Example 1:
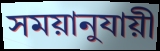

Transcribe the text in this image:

সময়ানুযায়ী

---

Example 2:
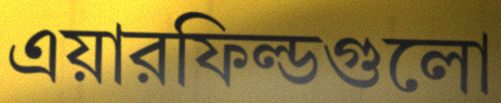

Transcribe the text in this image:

এয়ারফিল্ডগুলো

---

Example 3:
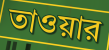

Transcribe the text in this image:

তাওয়ার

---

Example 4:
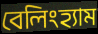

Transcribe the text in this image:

বেলিংহ্যাম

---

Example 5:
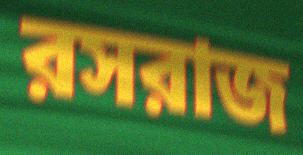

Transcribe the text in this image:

রসরাজ